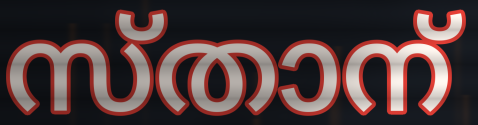
സ്താന്